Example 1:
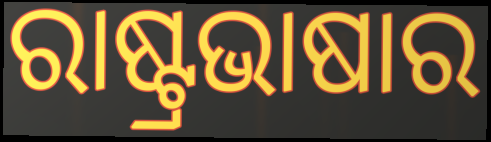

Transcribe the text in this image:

ରାଷ୍ଟ୍ରଭାଷାର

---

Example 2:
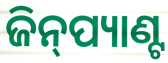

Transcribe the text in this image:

ଜିନ୍‍ପ୍ୟାଣ୍ଟ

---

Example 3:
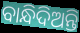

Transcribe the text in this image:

ବାନ୍ଧିଦିଅନ୍ତି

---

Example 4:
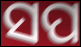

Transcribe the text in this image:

ସପ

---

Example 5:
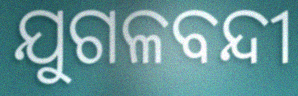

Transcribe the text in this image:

ଯୁଗଳବନ୍ଦୀ